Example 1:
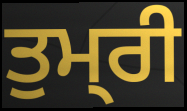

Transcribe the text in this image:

ਤੁਮ੍‍ਰੀ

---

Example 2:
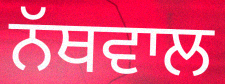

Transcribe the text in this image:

ਨੱਥਵਾਲ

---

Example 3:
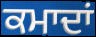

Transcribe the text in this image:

ਕਮਾਦਾਂ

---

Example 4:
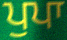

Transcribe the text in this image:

ਪੁਪਾ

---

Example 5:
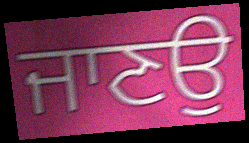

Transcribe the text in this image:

ਜਾਣਉ